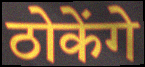
ठोकेंगे